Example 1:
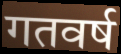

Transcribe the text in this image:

गतवर्ष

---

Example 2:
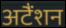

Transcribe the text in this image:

अटैंशन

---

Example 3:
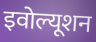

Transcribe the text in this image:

इवोल्यूशन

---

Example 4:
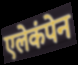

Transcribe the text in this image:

एलेकंपेन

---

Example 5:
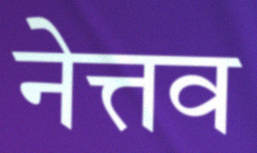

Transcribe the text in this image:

नेत्तव